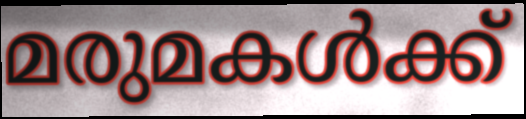
മരുമകൾക്ക്